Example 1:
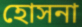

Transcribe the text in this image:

হোসনা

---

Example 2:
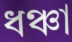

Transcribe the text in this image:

ধঞ্চা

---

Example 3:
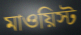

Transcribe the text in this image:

মাওয়িস্ট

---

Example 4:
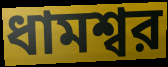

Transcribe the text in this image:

ধামশ্বর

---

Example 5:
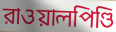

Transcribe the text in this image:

রাওয়ালপিণ্ডি